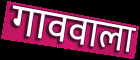
गाववाला